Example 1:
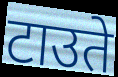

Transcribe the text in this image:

टाउते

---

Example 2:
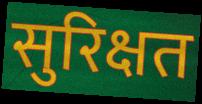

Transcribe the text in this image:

सुरिक्षत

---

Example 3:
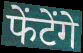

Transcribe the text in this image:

फेंटेंगे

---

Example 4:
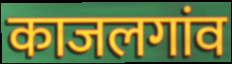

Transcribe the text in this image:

काजलगांव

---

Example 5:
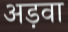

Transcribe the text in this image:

अड़वा